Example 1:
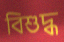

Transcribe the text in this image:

বিশুদ্ধ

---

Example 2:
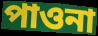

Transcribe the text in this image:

পাওনা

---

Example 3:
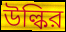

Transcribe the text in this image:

উল্কির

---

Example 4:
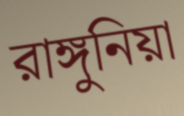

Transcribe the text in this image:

রাঙ্গুনিয়া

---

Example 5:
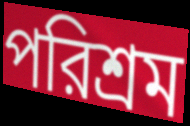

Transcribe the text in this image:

পরিশ্রম